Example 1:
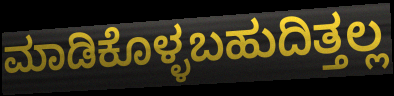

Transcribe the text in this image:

ಮಾಡಿಕೊಳ್ಳಬಹುದಿತ್ತಲ್ಲ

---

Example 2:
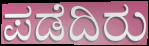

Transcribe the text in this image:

ಪಡೆದಿರು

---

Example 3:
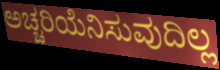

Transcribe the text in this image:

ಅಚ್ಚರಿಯೆನಿಸುವುದಿಲ್ಲ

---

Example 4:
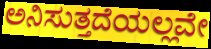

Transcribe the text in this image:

ಅನಿಸುತ್ತದೆಯಲ್ಲವೇ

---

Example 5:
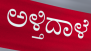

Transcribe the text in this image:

ಅಳ್ತಿದಾಳೆ